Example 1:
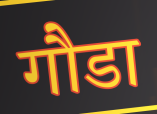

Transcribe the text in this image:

गौडा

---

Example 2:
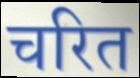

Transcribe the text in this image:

चरित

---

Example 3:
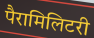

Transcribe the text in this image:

पैरामिलिटरी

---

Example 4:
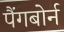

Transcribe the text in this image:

पैंगबोर्न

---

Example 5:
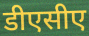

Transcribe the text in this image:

डीएसीए